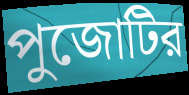
পুজোটির